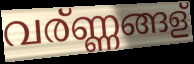
വര്ണ്ണങ്ങള്